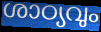
ശാഠ്യവും